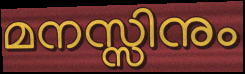
മനസ്സിനും